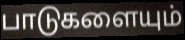
பாடுகளையும்